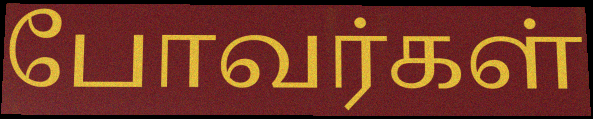
போவர்கள்